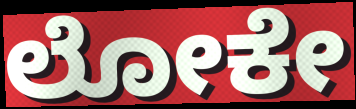
ಲೋಕೇ